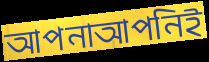
আপনাআপনিই